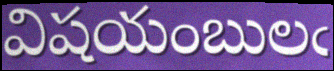
విషయంబులఁ